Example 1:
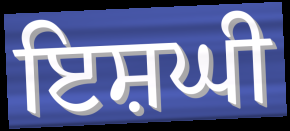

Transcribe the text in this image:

ਇਸ਼ਘੀ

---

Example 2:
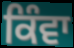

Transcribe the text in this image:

ਕਿੰਵਾ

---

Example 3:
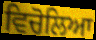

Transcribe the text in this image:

ਵਿਚੋਲਿਆ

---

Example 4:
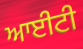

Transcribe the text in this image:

ਆਈਟੀ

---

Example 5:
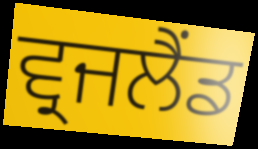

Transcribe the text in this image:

ਵ੍ਰਜਲੈਂਡ